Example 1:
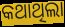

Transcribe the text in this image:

କଥାଥିଲା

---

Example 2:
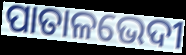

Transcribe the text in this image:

ପାତାଳଭେଦୀ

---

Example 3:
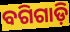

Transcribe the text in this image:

ବଗିଗାଡ଼ି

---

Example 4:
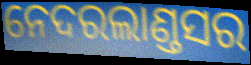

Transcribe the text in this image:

ନେଦରଲାଣ୍ଡସର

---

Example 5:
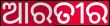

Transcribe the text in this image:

ଆରତୀର